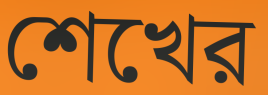
শেখের